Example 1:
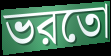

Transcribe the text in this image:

ভরতো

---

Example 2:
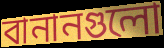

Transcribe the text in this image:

বানানগুলো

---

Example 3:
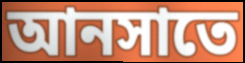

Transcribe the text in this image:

আনসাতে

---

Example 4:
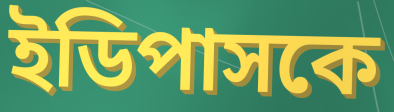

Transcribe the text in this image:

ইডিপাসকে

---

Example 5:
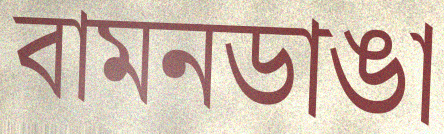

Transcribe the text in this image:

বামনডাঙা